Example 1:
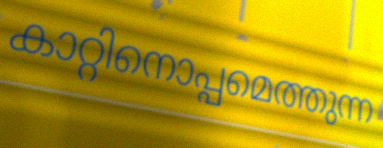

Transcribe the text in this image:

കാറ്റിനൊപ്പമെത്തുന്ന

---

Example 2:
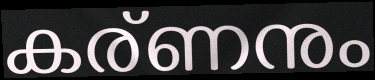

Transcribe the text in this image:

കര്ണനും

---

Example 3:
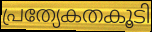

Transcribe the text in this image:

പ്രത്യേകതകൂടി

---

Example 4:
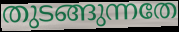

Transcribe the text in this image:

തുടങ്ങുന്നതേ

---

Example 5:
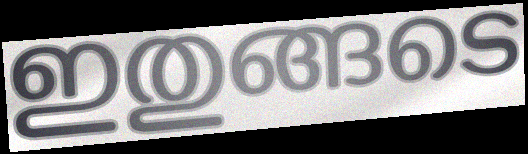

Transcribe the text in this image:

ഇതുങ്ങടെ